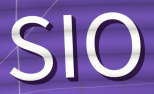
SIO